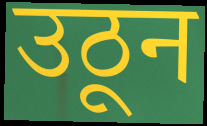
उठून